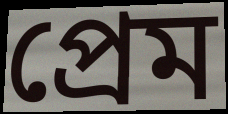
প্ৰেম